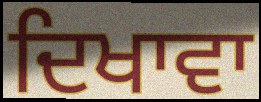
ਦਿਖਾਵਾ